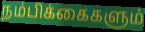
நம்பிக்கைகளும்